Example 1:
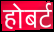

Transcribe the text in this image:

होबर्ट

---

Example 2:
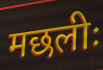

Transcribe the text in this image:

मछलीः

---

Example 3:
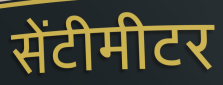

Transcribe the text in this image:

सेंटीमीटर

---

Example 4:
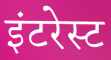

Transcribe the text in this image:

इंटरेस्ट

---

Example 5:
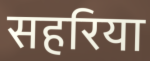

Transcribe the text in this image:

सहरिया